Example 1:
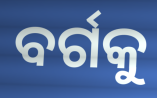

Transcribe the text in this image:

ବର୍ଗକୁ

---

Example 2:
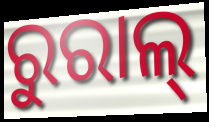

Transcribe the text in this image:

ରୁରାଲ୍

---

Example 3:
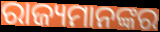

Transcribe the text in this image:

ରାଜ୍ୟମାନଙ୍କର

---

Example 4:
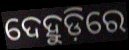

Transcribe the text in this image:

ଦେହୁଡ଼ିରେ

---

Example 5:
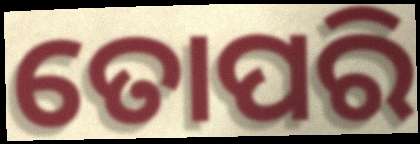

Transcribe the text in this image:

ତୋପରି